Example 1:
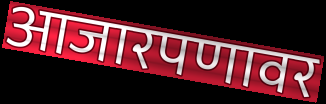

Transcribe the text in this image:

आजारपणावर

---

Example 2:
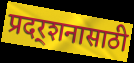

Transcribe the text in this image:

प्रदर्शनासाठी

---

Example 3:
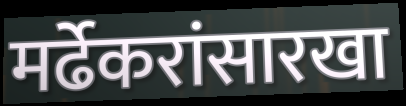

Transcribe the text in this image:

मर्ढेकरांसारखा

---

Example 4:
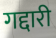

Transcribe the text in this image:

गद्दारी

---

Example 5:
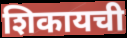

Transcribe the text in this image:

शिकायची